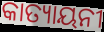
କାତ୍ୟାୟନୀ